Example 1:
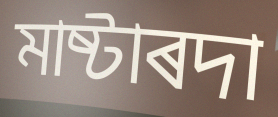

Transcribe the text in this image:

মাষ্টাৰদা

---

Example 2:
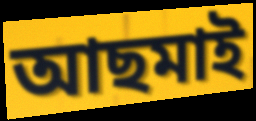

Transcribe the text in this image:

আছমাই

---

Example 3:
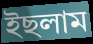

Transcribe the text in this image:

ইছলাম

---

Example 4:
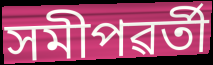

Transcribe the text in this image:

সমীপৱৰ্তী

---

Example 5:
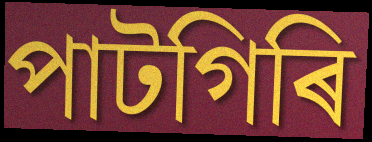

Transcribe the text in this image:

পাটগিৰি